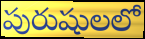
పురుషులలో